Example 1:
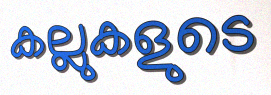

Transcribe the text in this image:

കല്ലുകളുടെ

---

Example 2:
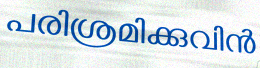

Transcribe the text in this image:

പരിശ്രമിക്കുവിൻ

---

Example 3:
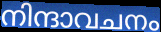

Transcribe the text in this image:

നിന്ദാവചനം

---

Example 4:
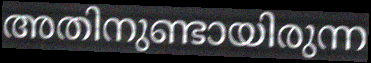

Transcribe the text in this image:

അതിനുണ്ടായിരുന്ന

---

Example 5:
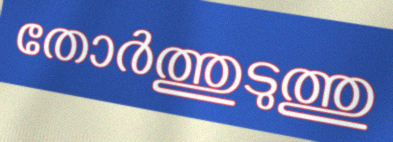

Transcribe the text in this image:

തോർത്തുടുത്തു